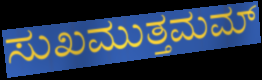
ಸುಖಮುತ್ತಮಮ್